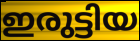
ഇരുട്ടിയ